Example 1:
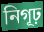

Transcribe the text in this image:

নিগূঢ়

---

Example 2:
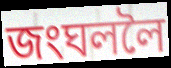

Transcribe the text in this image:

জংঘললৈ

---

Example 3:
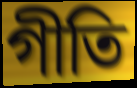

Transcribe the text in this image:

গীতি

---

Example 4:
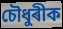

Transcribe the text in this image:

চৌধুৰীক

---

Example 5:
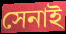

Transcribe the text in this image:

সেনাই